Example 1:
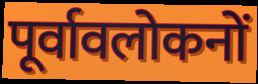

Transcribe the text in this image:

पूर्वावलोकनों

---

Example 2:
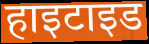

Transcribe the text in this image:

हाइटाइड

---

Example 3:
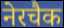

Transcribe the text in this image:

नेरचैक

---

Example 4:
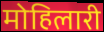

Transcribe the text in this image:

मोहिलारी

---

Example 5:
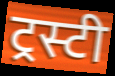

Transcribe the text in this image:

ट्रस्टी